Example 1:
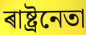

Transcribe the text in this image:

ৰাষ্ট্ৰনেতা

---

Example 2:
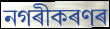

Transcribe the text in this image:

নগৰীকৰণৰ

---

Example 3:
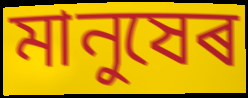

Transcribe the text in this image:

মানুষেৰ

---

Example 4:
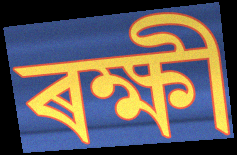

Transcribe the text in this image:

ৰক্ষী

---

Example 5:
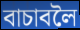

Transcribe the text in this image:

বাচাবলৈ